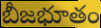
బీజభూతం